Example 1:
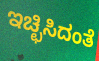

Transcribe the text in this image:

ಇಚ್ಛಿಸಿದಂತೆ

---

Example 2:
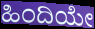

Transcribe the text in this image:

ಹಿಂದಿಯೇ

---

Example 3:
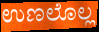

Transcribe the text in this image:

ಉಣಲೊಲ್ಲ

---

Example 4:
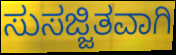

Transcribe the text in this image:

ಸುಸಜ್ಜಿತವಾಗಿ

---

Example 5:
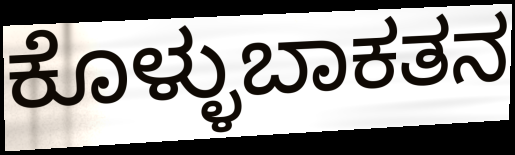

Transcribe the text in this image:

ಕೊಳ್ಳುಬಾಕತನ